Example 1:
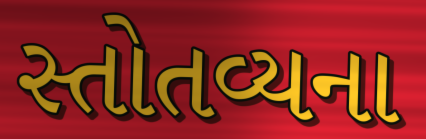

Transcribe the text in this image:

સ્તોતવ્યના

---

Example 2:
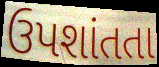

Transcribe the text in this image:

ઉપશાંતતા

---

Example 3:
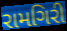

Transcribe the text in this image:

રામગિરી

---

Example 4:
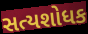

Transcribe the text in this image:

સત્યશોધક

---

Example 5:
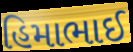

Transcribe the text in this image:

હિમાભાઈ